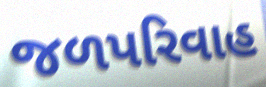
જળપરિવાહ